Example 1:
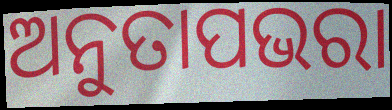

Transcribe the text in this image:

ଅନୁତାପଭରା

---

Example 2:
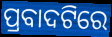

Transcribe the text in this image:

ପ୍ରବାଦଟିରେ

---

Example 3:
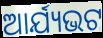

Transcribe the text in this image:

ଆର୍ଯ୍ୟଭଟ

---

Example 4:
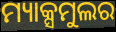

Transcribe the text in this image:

ମ୍ୟାକ୍ସମୁଲର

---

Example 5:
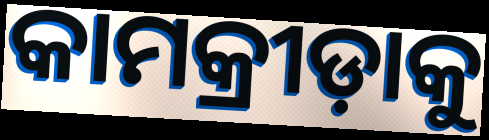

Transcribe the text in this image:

କାମକ୍ରୀଡ଼ାକୁ